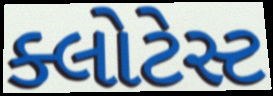
ક્લોટેસ્ટ